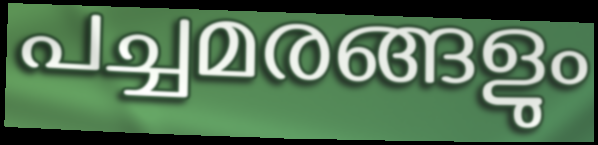
പച്ചമരങ്ങളും